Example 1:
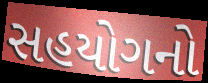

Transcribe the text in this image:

સહયોગનો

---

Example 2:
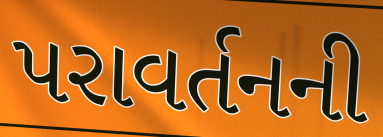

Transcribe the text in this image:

પરાવર્તનની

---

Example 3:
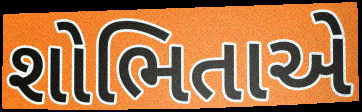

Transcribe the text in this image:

શોભિતાએ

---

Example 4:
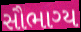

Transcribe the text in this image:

સૌભાગ્ય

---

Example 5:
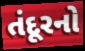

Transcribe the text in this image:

તંદૂરનો